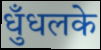
धुँधलके